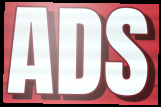
ADS